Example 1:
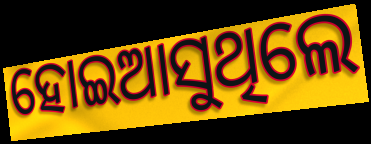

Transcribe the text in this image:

ହୋଇଆସୁଥିଲେ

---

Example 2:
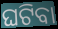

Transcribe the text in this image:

ଘଟିବା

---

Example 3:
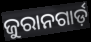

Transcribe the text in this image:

ଜୁରାନଗାର୍ଡ଼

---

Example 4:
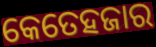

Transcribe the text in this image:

କେତେହଜାର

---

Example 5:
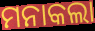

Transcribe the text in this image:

ମନାକଲା